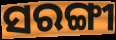
ସରଙ୍ଗୀ